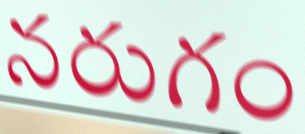
నరుగం